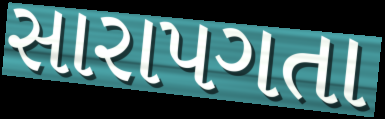
સારાપગતા